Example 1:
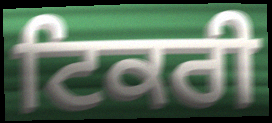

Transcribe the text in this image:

ਟਿਕਰੀ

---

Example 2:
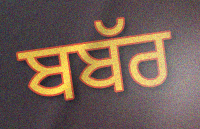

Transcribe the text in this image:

ਬਬੱਰ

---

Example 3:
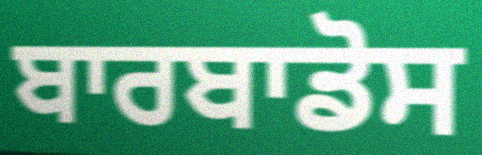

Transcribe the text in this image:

ਬਾਰਬਾਡੋਸ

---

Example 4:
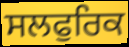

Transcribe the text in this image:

ਸਲਫੁਰਿਕ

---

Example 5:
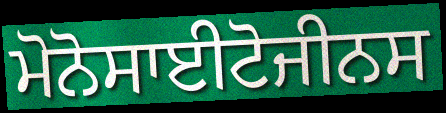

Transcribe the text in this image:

ਮੋਨੋਸਾਈਟੋਜੀਨਸ